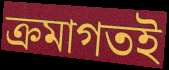
ক্রমাগতই